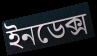
ইনডেক্স